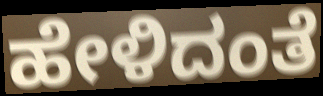
ಹೇಳಿದಂತೆ